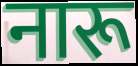
नारू